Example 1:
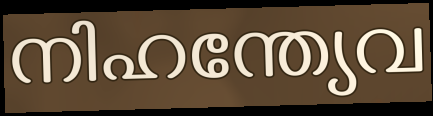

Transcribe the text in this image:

നിഹന്ത്യേവ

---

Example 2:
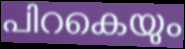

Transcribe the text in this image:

പിറകെയും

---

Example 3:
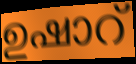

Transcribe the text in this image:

ഉഷാറ്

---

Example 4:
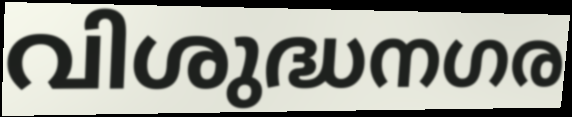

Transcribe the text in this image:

വിശുദ്ധനഗര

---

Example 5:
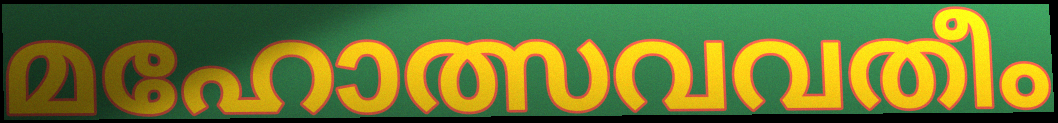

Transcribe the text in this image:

മഹോത്സവവതീം